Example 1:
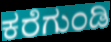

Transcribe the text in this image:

ಕರೆಗುಂಡಿ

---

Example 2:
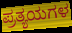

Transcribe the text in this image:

ಪ್ರತ್ಯಯಗಳ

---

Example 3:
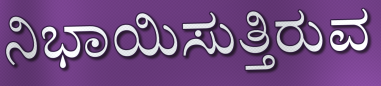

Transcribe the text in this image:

ನಿಭಾಯಿಸುತ್ತಿರುವ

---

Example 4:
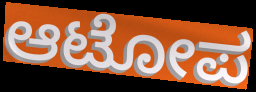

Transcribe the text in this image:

ಆಟೋಪ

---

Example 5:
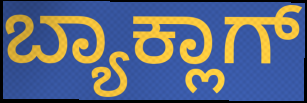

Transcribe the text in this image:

ಬ್ಯಾಕ್ಲಾಗ್